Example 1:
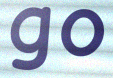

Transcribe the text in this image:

go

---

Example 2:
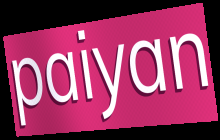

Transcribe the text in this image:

paiyan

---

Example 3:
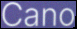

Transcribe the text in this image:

Cano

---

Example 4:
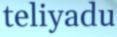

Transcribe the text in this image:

teliyadu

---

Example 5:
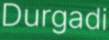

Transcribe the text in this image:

Durgadi